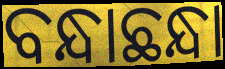
ବନ୍ଧାଛନ୍ଧା